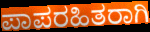
ಪಾಪರಹಿತರಾಗಿ